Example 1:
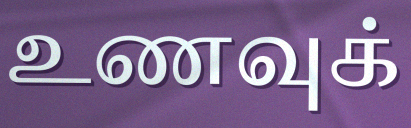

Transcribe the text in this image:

உணவுக்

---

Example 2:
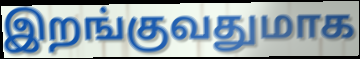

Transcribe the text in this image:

இறங்குவதுமாக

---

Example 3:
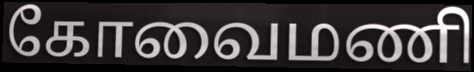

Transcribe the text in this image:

கோவைமணி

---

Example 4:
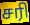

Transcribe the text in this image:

சரி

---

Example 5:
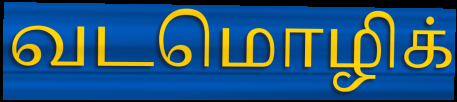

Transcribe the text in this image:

வடமொழிக்